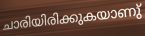
ചാരിയിരിക്കുകയാണു്